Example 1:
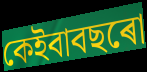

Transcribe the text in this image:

কেইবাবছৰো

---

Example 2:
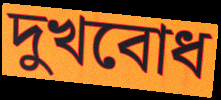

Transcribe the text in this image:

দুখবোধ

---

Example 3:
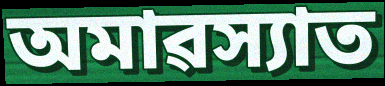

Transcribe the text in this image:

অমাৱস্যাত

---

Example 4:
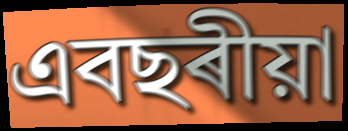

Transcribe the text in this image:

এবছৰীয়া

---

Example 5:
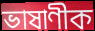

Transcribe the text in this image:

ভাষাণীক